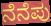
ನೆನೆಪು